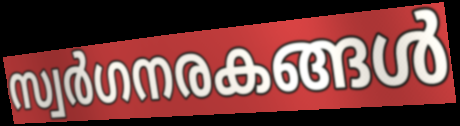
സ്വർഗനരകങ്ങൾ